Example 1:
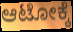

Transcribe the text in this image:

ಆಟೋಕ್ಕೆ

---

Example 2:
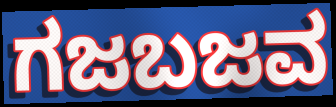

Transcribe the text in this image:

ಗಜಬಜವ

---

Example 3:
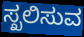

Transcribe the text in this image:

ಸ್ಖಲಿಸುವ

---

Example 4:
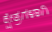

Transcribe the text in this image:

ಕ್ಷೇತ್ರಗಳಾಗಿ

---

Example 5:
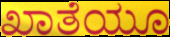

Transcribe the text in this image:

ಖಾತೆಯೂ